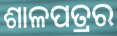
ଶାଳପତ୍ରର